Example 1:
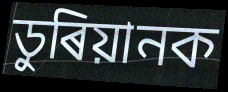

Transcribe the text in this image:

ডুৰিয়ানক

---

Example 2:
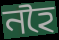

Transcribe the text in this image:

নহৈ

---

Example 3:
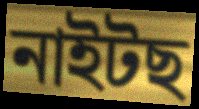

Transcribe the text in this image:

নাইটছ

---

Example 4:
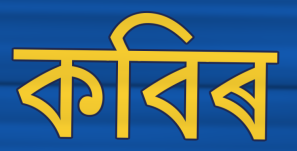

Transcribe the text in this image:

কবিৰ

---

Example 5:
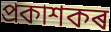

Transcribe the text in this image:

প্ৰকাশকৰ